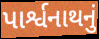
પાર્શ્વનાથનું